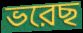
ভরেছ